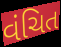
વંચિત